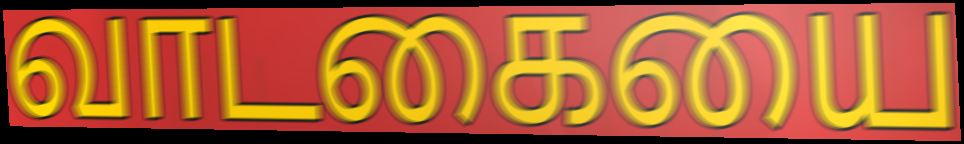
வாடகையை